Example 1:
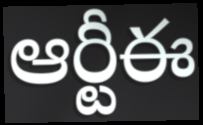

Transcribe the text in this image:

ఆర్టీఈ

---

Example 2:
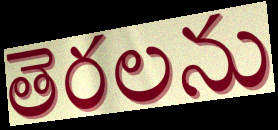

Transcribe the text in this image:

తెరలను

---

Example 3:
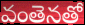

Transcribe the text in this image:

వంతెనతో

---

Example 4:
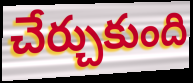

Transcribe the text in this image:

చేర్చుకుంది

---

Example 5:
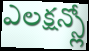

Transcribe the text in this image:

ఎలక్షన్స్లో